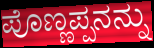
ಪೊಣ್ಣಪ್ಪನನ್ನು